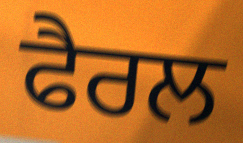
ਫੈਰਲ